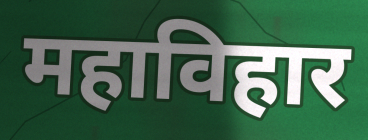
महाविहार